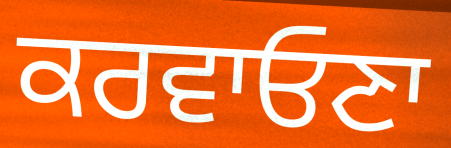
ਕਰਵਾਓਣਾ